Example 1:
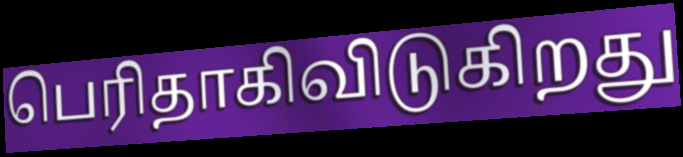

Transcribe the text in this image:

பெரிதாகிவிடுகிறது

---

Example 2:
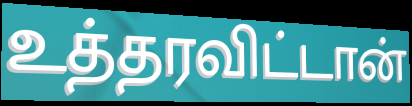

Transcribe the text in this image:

உத்தரவிட்டான்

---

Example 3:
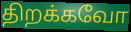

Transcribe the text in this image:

திறக்கவோ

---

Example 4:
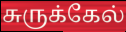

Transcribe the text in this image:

சுருக்கேல்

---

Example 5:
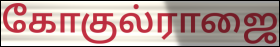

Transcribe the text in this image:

கோகுல்ராஜை